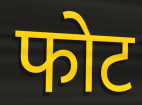
फोट